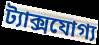
ট্যাক্সযোগ্য